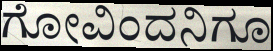
ಗೋವಿಂದನಿಗೂ